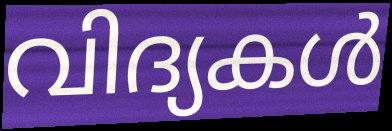
വിദ്യകൾ